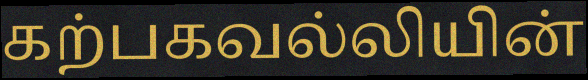
கற்பகவல்லியின்